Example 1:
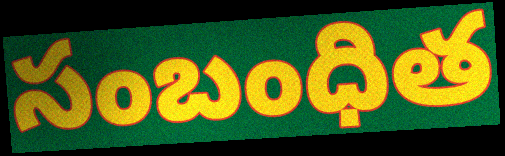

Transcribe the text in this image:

సంబంధిత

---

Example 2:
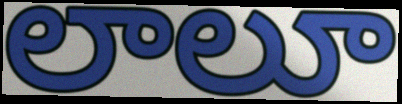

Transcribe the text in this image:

లాలూ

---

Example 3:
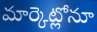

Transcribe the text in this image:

మార్కెట్లోనూ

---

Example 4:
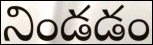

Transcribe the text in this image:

నిండడం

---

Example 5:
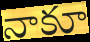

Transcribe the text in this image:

నాకూ